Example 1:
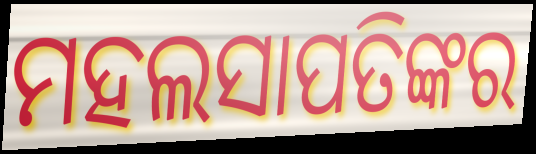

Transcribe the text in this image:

ମହଲସାପତିଙ୍କର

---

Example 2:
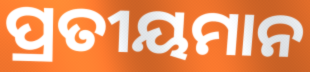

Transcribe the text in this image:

ପ୍ରତୀୟମାନ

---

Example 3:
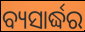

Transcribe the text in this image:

ବ୍ୟସାର୍ଦ୍ଧର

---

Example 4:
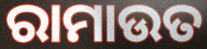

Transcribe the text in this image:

ରାମାଉତ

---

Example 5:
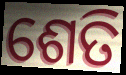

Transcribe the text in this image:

ଶେତି